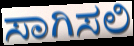
ಸಾಗಿಸಲಿ